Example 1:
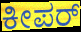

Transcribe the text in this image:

ಕೀಪರ್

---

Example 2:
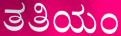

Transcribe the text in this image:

ತತಿಯಂ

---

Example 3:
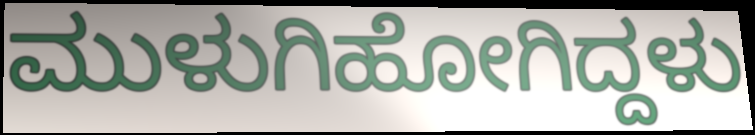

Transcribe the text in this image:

ಮುಳುಗಿಹೋಗಿದ್ದಳು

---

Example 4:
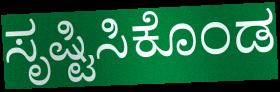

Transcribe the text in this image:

ಸೃಷ್ಟಿಸಿಕೊಂಡ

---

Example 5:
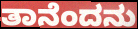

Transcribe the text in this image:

ತಾನೆಂದನು